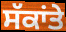
ਸੱਕਾਂਤੇ